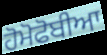
ਹੋਮੋਫੋਬੀਆ